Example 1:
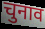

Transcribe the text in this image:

चुनाव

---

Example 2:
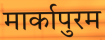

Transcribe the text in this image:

मार्कापुरम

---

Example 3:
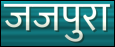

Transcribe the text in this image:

जजपुरा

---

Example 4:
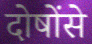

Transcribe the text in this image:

दोषोंसे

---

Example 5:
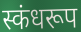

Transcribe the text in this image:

स्कंधरूप